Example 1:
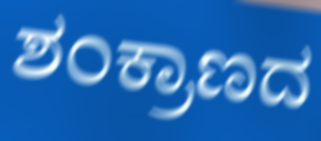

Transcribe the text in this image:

ಶಂಕ್ರಾಣದ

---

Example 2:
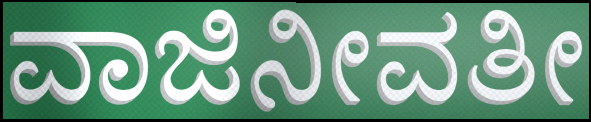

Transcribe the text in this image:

ವಾಜಿನೀವತೀ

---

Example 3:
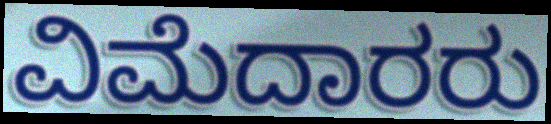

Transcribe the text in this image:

ವಿಮೆದಾರರು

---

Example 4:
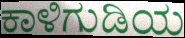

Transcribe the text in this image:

ಕಾಳಿಗುಡಿಯ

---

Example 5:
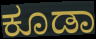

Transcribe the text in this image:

ಕೂಡಾ